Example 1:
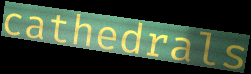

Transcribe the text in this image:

cathedrals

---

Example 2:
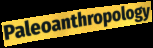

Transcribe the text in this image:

Paleoanthropology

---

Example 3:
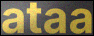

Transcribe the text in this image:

ataa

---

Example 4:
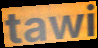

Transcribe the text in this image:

tawi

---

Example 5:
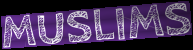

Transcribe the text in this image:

MUSLIMS